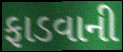
ફાડવાની